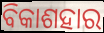
ବିକାଶହାର